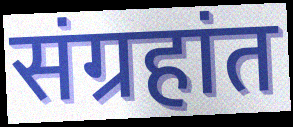
संग्रहांत